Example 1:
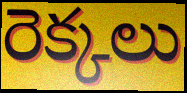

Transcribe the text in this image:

రెక్కలు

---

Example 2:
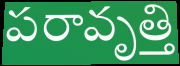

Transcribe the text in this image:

పరావృత్తి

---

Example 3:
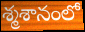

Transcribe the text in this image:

శ్మశానంలో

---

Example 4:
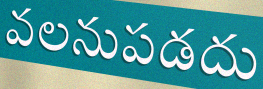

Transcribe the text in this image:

వలనుపడదు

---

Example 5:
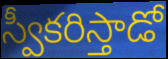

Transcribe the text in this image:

స్వీకరిస్తాడో